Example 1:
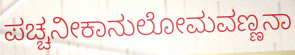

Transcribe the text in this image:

ಪಚ್ಚನೀಕಾನುಲೋಮವಣ್ಣನಾ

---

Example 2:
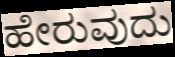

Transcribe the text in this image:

ಹೇರುವುದು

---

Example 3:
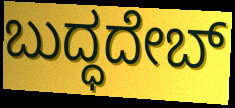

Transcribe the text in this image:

ಬುದ್ಧದೇಬ್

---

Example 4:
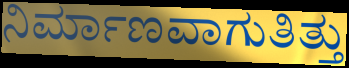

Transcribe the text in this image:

ನಿರ್ಮಾಣವಾಗುತಿತ್ತು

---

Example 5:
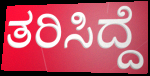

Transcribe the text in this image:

ತರಿಸಿದ್ದೆ